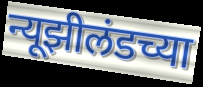
न्यूझीलंडच्या